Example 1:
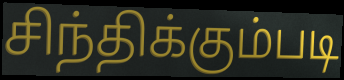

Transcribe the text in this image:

சிந்திக்கும்படி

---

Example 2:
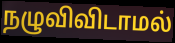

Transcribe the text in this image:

நழுவிவிடாமல்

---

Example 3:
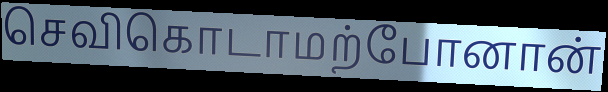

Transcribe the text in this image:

செவிகொடாமற்போனான்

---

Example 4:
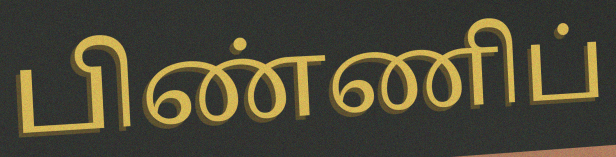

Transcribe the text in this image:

பிண்ணிப்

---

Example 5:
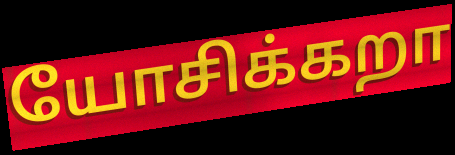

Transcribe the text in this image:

யோசிக்கறா